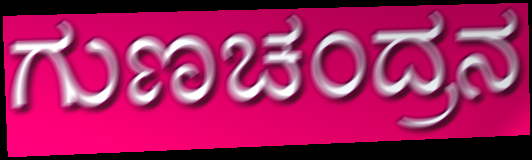
ಗುಣಚಂದ್ರನ